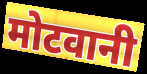
मोटवानी